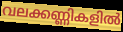
വലക്കണ്ണികളിൽ